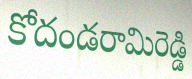
కోదండరామిరెడ్డి